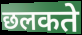
छलकते